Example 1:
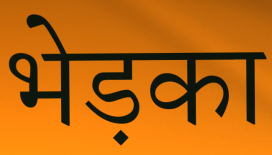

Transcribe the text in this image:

भेड़का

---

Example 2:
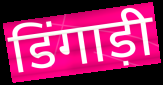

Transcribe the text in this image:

डिंगाड़ी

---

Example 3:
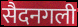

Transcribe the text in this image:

सैदनगली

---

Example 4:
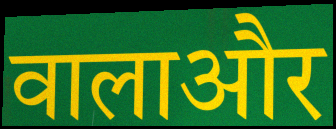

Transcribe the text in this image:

वालाऔर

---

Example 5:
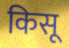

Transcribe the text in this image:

किसू